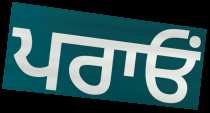
ਪਰਾਓਂ